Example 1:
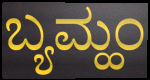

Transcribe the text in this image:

ಬ್ಯಮ್ಹಂ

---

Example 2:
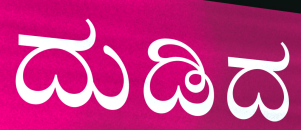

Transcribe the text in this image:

ದುಡಿದ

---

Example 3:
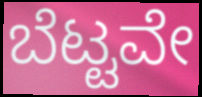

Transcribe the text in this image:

ಬೆಟ್ಟವೇ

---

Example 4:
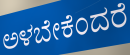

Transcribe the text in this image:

ಅಳಬೇಕೆಂದರೆ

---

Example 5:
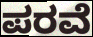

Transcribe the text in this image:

ಪರವೆ